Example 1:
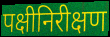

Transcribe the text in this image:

पक्षीनिरीक्षण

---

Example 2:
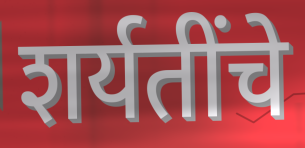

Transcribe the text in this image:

शर्यतींचे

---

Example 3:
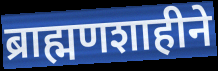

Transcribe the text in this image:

ब्राह्मणशाहीने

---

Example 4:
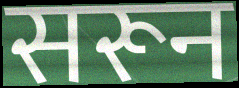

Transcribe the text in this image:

सरून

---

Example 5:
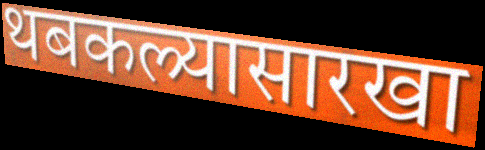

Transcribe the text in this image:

थबकल्यासारखा